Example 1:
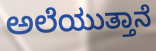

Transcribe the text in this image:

ಅಲೆಯುತ್ತಾನೆ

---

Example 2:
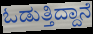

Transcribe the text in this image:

ಓಡುತ್ತಿದ್ದಾನೆ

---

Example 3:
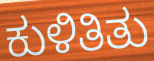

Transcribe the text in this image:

ಕುಳಿತಿತು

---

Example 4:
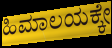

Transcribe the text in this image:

ಹಿಮಾಲಯಕ್ಕೇ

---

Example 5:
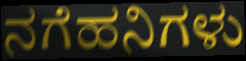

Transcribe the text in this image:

ನಗೆಹನಿಗಳು